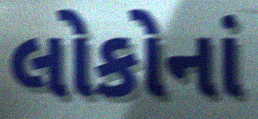
લોકોનાં